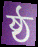
ষ্ঠ